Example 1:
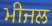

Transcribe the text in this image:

ਮੀਜਲ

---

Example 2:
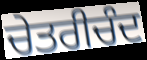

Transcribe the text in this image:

ਚੇਤਰੀਚੰਦ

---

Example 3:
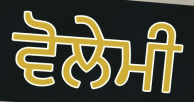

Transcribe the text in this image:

ਵੋਲੇਮੀ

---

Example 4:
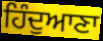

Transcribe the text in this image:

ਹਿੰਦੁਆਣਾ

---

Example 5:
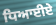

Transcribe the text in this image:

ਧਿਆਈਏ